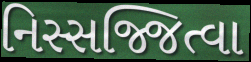
નિસ્સજ્જિત્વા